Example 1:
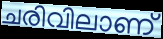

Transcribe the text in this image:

ചരിവിലാണ്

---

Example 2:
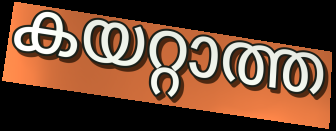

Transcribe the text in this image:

കയറ്റാത്ത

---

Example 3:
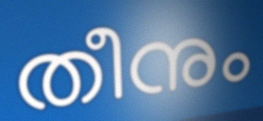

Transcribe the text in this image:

തീനും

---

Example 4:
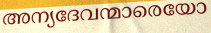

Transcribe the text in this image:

അന്യദേവന്മാരെയോ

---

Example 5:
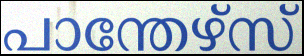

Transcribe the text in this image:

പാന്തേഴ്സ്